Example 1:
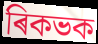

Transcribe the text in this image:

ৰিকভক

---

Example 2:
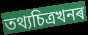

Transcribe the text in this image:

তথ্যচিত্ৰখনৰ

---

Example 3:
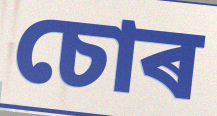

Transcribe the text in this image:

চোৰ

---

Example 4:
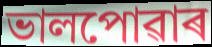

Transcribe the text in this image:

ভালপোৱাৰ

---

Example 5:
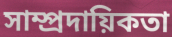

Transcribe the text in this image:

সাম্প্ৰদায়িকতা